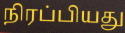
நிரப்பியது